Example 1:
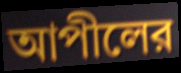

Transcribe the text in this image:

আপীলের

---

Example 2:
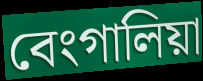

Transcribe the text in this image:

বেংগালিয়া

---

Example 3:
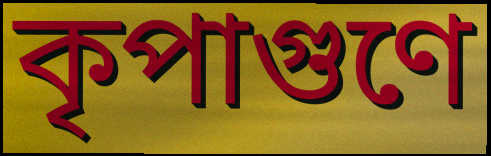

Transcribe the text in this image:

কৃপাগুণে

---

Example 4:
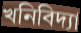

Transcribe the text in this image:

খনিবিদ্যা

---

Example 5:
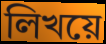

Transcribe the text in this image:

লিখয়ে